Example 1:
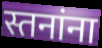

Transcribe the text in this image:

स्तनांना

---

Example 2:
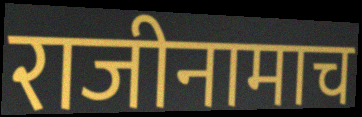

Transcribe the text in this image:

राजीनामाच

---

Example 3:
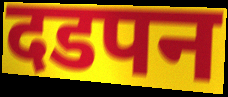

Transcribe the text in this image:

दडपन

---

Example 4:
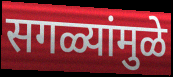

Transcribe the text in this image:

सगळ्यांमुळे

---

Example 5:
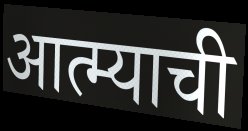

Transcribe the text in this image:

आत्म्याची